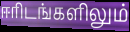
ஈரிடங்களிலும்